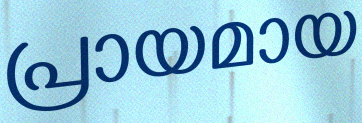
പ്രായമായ